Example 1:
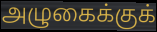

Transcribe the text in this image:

அழுகைக்குக்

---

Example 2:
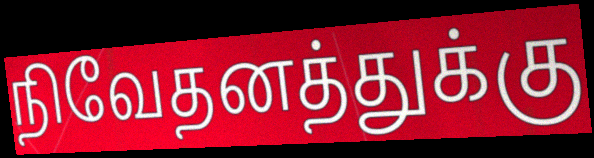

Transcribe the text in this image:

நிவேதனத்துக்கு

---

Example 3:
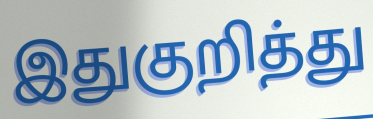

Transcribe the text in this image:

இதுகுறித்து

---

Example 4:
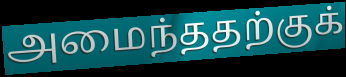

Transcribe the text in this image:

அமைந்ததற்குக்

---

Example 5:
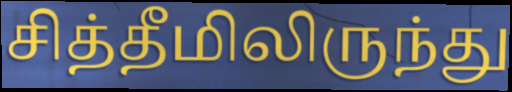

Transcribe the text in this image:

சித்தீமிலிருந்து